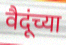
वैदूंच्या